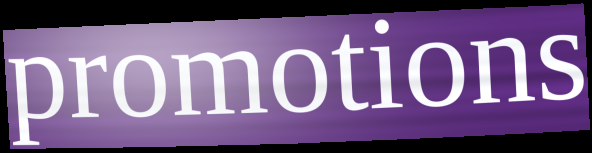
promotions